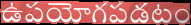
ఉపయోగపడటం